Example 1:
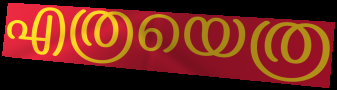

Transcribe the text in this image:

എത്രയെത്ര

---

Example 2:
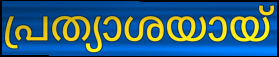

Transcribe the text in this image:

പ്രത്യാശയായ്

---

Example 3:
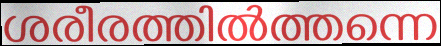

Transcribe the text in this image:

ശരീരത്തിൽത്തന്നെ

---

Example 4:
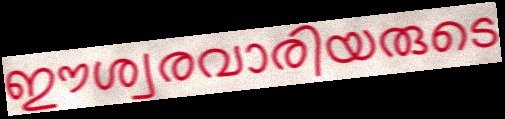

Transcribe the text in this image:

ഈശ്വരവാരിയരുടെ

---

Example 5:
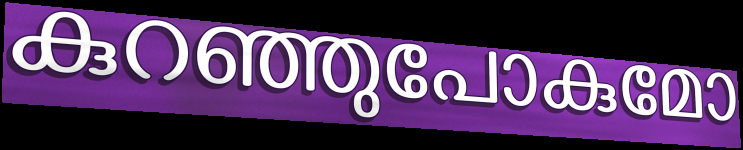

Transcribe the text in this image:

കുറഞ്ഞുപോകുമോ